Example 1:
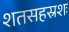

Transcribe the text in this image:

शतसहस्रशः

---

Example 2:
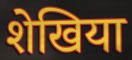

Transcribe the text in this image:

शेखिया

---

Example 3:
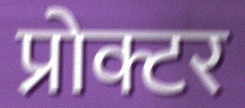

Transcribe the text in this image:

प्रोक्टर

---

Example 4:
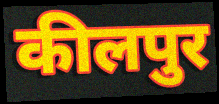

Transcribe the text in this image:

कीलपुर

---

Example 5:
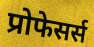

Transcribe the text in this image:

प्रोफेसर्स